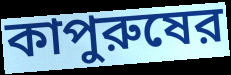
কাপুরুষের